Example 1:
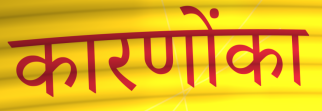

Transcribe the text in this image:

कारणोंका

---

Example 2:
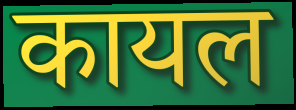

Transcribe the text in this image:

कायल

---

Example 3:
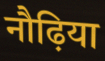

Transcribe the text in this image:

नौढ़िया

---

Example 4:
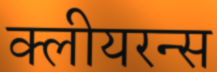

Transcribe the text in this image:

क्लीयरन्स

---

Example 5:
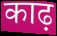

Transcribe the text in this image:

काढ़